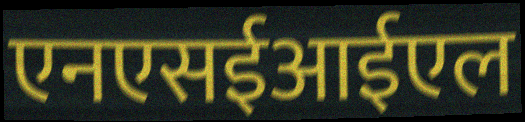
एनएसईआईएल